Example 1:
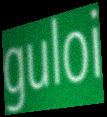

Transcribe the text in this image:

guloi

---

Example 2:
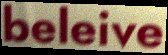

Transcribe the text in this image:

beleive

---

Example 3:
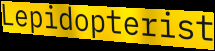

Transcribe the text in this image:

Lepidopterist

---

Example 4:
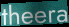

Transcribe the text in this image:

theera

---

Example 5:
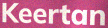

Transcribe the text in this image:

Keertan